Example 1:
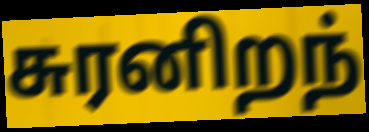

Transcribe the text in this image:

சுரனிறந்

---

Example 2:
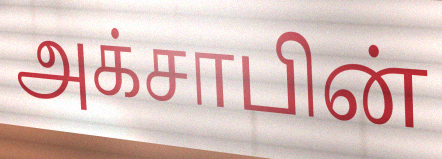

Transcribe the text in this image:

அக்சாபின்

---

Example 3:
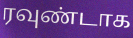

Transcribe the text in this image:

ரவுண்டாக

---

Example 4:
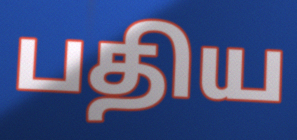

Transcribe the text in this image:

பதிய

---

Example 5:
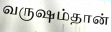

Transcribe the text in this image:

வருஷம்தான்